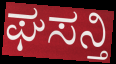
ಘಸನ್ತಿ